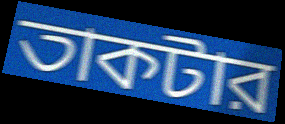
তাকটার